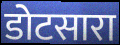
डोटसारा